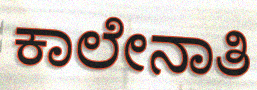
ಕಾಲೇನಾತಿ